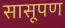
सासूपण